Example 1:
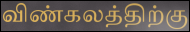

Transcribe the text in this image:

விண்கலத்திற்கு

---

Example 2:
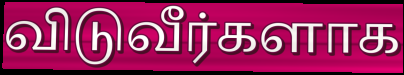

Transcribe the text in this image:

விடுவீர்களாக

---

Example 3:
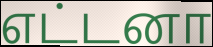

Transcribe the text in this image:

எட்டனா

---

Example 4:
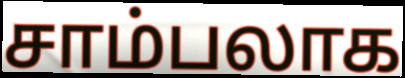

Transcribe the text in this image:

சாம்பலாக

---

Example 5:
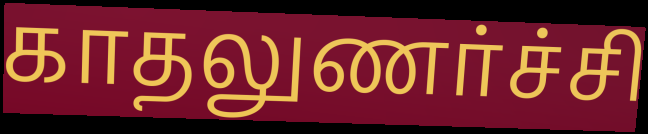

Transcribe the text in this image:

காதலுணர்ச்சி